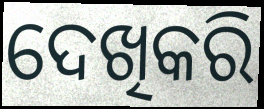
ଦେଖିକରି